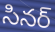
సినర్